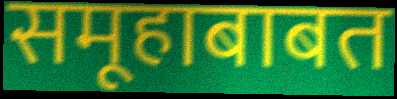
समूहाबाबत